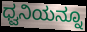
ಧ್ವನಿಯನ್ನೂ